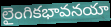
లైంగికభావనయా